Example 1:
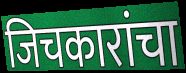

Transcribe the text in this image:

जिचकारांचा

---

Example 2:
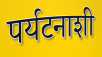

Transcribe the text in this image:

पर्यटनाशी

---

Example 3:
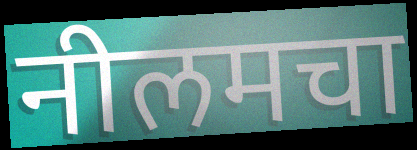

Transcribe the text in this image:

नीलमचा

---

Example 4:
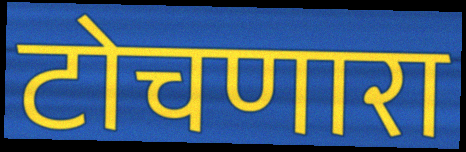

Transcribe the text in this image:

टोचणारा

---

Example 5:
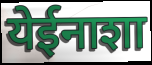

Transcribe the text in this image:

येईनाशा